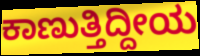
ಕಾಣುತ್ತಿದ್ದೀಯ